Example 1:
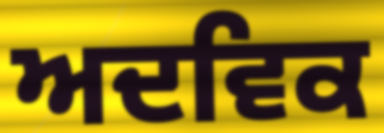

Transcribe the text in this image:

ਅਦਵਿਕ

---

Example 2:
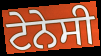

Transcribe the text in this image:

ਟੇਨੇਸੀ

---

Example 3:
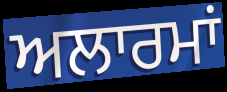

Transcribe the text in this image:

ਅਲਾਰਮਾਂ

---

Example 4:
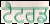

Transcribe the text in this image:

ਟੈਟਰਡ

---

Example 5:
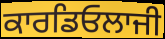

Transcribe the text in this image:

ਕਾਰਡਿਓਲਾਜੀ